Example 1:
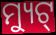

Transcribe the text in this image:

ମ୍ୟୁଟ୍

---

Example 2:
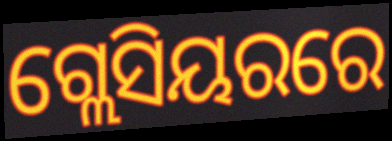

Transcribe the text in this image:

ଗ୍ଲେସିୟରରେ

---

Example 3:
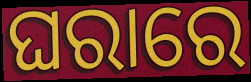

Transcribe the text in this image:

ଘରାରେ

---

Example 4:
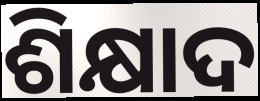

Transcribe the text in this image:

ଶିକ୍ଷାଦ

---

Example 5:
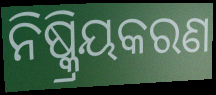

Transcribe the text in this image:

ନିଷ୍କ୍ରିୟକରଣ